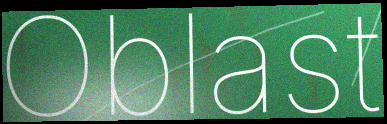
Oblast